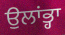
ਉਲਾਂਭ੍ਹਾ